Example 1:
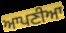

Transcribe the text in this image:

ਆਪਣੀਆ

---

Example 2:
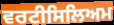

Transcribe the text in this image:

ਵਰਟੀਸਿਲਿਅਮ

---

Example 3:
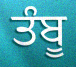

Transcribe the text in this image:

ਤੰਬੂ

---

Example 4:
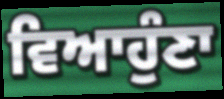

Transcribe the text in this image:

ਵਿਆਹੁੰਣਾ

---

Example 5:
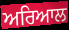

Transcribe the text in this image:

ਅਰਿਆਲ